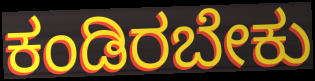
ಕಂಡಿರಬೇಕು